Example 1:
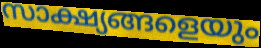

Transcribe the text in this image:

സാക്ഷ്യങ്ങളെയും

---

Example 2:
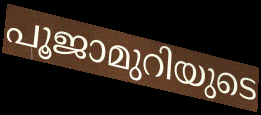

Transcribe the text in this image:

പൂജാമുറിയുടെ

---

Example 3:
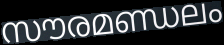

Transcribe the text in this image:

സൗരമണ്ഡലം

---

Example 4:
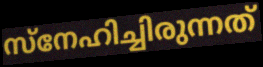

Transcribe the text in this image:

സ്നേഹിച്ചിരുന്നത്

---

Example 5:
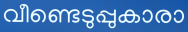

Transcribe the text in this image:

വീണ്ടെടുപ്പുകാരാ